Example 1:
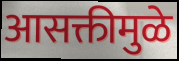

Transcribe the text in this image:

आसक्तीमुळे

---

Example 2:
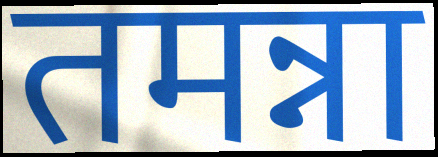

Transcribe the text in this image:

तमन्ना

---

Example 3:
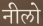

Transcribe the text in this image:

नीलो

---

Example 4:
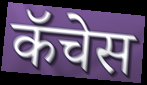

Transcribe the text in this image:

कॅचेस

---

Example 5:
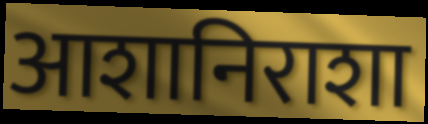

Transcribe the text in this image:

आशानिराशा